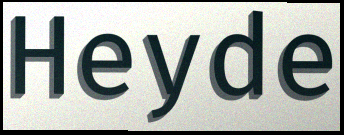
Heyde